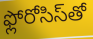
ఫ్లోరోసిస్‌తో